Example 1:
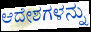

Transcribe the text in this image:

ಆದೇಶಗಳನ್ನು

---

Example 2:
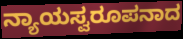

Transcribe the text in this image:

ನ್ಯಾಯಸ್ವರೂಪನಾದ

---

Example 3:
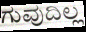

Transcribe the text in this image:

ಗುವುದಿಲ್ಲ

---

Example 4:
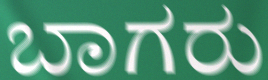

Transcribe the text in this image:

ಬಾಗರು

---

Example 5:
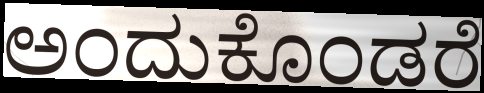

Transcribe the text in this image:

ಅಂದುಕೊಂಡರೆ